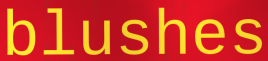
blushes